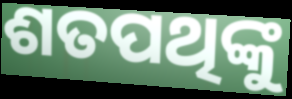
ଶତପଥିଙ୍କୁ